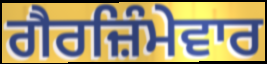
ਗੈਰਜ਼ਿੰਮੇਵਾਰ